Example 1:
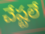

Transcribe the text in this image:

చేష్టలే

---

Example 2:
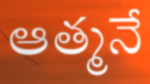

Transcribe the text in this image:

ఆత్మనే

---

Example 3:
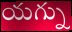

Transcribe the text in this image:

యగ్ను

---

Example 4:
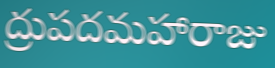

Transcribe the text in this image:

ద్రుపదమహారాజు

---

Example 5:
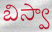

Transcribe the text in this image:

బిస్వా